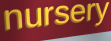
nursery